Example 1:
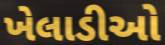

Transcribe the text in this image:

ખેલાડીઓ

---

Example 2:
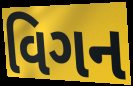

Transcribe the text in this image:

વિગન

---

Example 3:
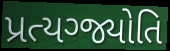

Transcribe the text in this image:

પ્રત્યગ્જ્યોતિ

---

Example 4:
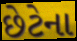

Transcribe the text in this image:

છેટેના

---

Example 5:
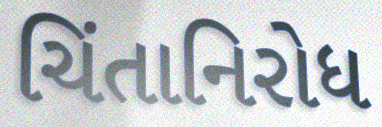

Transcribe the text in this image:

ચિંતાનિરોધ